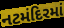
નટમંદિરમાં